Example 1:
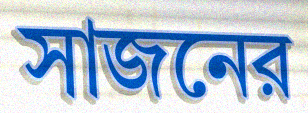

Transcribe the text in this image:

সাজনের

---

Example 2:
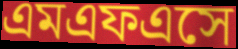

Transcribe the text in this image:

এমএফএসে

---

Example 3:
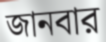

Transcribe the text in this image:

জানবার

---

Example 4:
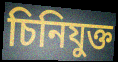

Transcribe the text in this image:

চিনিযুক্ত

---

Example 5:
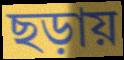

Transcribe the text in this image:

ছড়ায়